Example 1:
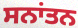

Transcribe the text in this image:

ਸਨਾਂਤਨ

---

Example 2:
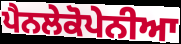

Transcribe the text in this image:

ਪੈਨਲੇਕੋਪੇਨੀਆ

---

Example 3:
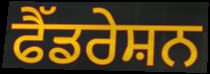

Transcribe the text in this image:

ਫੈੱਡਰੇਸ਼ਨ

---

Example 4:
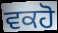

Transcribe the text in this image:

ਵਕਹੋ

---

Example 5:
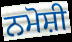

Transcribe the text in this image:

ਨਮੋਸ਼ੀ